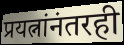
प्रयत्नांनंतरही